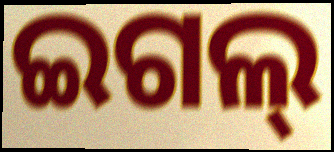
ଇଗଲ୍